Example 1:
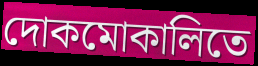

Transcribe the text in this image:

দোকমোকালিতে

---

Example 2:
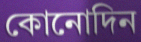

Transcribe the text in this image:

কোনোদিন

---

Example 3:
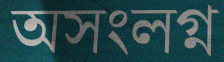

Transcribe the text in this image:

অসংলগ্ন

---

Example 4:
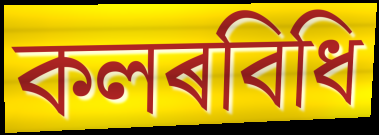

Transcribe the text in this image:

কলৰবিধি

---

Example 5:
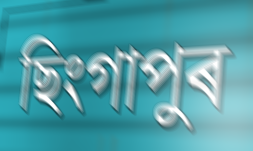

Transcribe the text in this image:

ছিংগাপুৰ